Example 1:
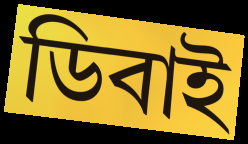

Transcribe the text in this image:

ডিবাই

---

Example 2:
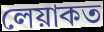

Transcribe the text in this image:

লেয়াকত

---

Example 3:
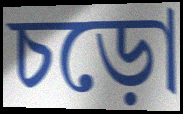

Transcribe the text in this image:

চড়ো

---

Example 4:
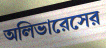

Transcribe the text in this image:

অলিভারেসের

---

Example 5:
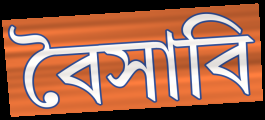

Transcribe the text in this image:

বৈসাবি